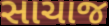
સાચાજ